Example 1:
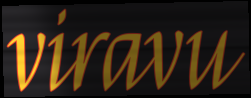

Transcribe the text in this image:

viravu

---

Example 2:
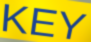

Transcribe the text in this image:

KEY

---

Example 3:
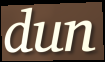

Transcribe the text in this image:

dun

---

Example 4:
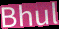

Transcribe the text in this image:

Bhul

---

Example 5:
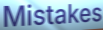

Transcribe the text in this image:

Mistakes